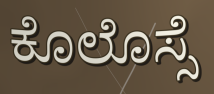
ಕೊಲೊಸ್ಸೆ